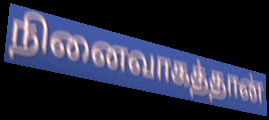
நினைவாகத்தான்